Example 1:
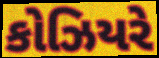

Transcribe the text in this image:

કોઝિયરે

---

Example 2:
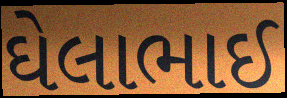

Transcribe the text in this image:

ઘેલાભાઈ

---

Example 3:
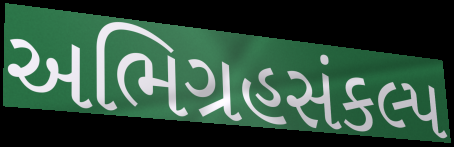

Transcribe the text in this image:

અભિગ્રહસંકલ્પ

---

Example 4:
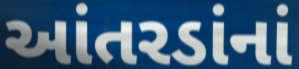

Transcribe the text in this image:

આંતરડાંનાં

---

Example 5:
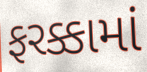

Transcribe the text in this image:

ફરક્કામાં